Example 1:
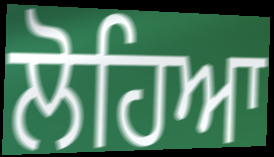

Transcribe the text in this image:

ਲੋਹਿਆ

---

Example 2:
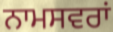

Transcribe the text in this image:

ਨਾਮਸਵਰਾਂ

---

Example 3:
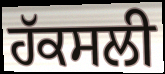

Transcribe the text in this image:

ਹੱਕਸਲੀ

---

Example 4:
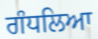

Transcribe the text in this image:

ਗੰਧਲਿਆ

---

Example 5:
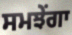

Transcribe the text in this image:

ਸਮਝੇਂਗਾ